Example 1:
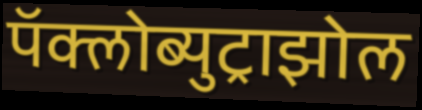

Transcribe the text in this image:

पॅक्लोब्युट्राझोल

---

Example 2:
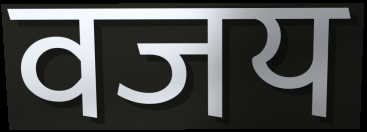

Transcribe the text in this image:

वजय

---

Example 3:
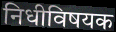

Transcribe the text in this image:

निधीविषयक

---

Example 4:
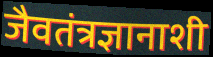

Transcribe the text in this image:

जैवतंत्रज्ञानाशी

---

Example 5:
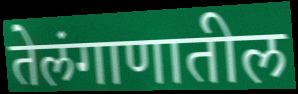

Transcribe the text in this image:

तेलंगाणातील